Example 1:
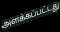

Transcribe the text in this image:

அளக்கப்பட்டது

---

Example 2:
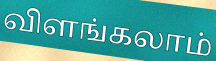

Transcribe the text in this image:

விளங்கலாம்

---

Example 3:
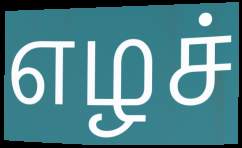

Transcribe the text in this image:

எழச்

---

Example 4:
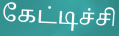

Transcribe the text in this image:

கேட்டிச்சி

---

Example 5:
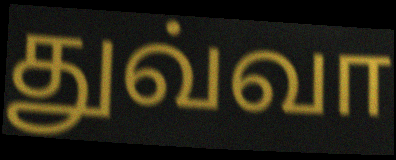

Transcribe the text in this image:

துவ்வா